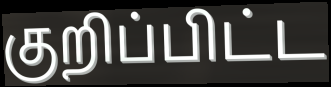
குறிப்பிட்ட